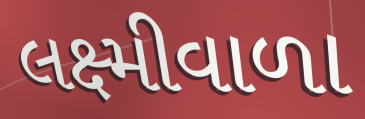
લક્ષ્મીવાળા